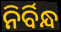
ନିର୍ବିନ୍ଧ